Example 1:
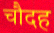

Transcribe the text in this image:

चौदह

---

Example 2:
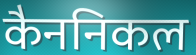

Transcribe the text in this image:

कैननिकल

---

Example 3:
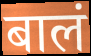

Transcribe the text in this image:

बालं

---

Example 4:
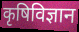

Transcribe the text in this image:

कृषिविज्ञान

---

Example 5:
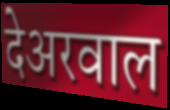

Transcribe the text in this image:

देअरवाल